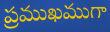
ప్రముఖముగా